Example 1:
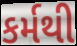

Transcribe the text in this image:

કર્મથી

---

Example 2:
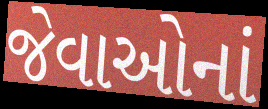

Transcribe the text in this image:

જેવાઓનાં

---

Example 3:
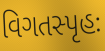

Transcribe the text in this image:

વિગતસ્પૃહઃ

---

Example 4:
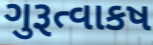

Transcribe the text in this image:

ગુરૂત્વાકષ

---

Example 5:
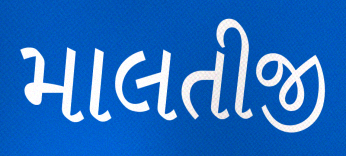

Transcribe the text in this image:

માલતીજી